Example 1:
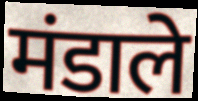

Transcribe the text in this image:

मंडाले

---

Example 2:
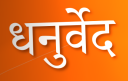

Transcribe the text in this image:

धनुर्वेद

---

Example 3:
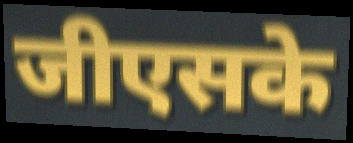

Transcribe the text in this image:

जीएसके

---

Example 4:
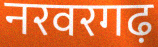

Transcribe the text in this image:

नरवरगढ़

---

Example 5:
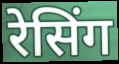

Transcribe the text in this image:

रेसिंग